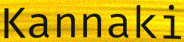
Kannaki